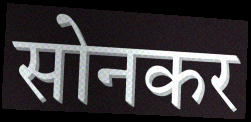
सोनकर